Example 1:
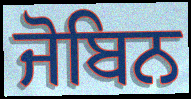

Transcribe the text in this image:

ਜੋਬਿਨ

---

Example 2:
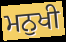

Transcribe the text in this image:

ਮਨੁਖੀ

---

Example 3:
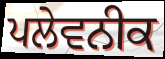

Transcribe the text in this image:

ਪਲੇਵਨੀਕ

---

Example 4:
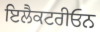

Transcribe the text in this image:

ਇਲੈਕਟਰੀਓਨ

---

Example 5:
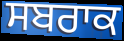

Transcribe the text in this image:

ਸਬਰਾਕ